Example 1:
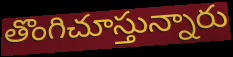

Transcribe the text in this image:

తొంగిచూస్తున్నారు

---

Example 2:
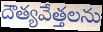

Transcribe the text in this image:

దౌత్యవేత్తలను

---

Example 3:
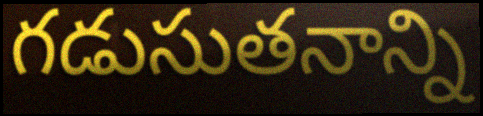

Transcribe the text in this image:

గడుసుతనాన్ని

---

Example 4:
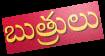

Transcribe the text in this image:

బుత్రులు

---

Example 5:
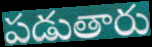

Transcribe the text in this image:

పడుతారు